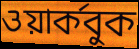
ওয়ার্কবুক